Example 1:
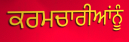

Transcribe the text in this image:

ਕਰਮਚਾਰੀਆਂਨੂੰ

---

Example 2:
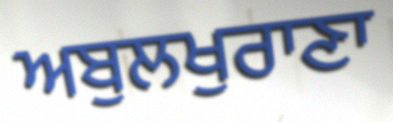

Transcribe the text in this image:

ਅਬੁਲਖੁਰਾਣਾ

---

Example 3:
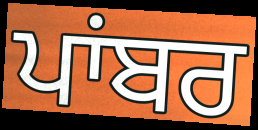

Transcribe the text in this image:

ਪਾਂਬਰ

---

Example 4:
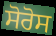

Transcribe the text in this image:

ਸੋਰੋਸ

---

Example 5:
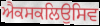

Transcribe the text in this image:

ਐਕਸਕਲਿਉਸਿਵ